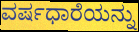
ವರ್ಷಧಾರೆಯನ್ನು